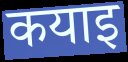
कयाइ